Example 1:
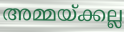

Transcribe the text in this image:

അമ്മയ്ക്കല്ല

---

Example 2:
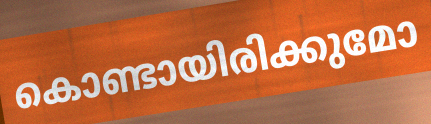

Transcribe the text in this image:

കൊണ്ടായിരിക്കുമോ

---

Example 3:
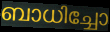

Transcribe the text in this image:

ബാധിച്ചോ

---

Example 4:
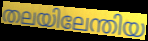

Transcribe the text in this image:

തലയിലേന്തിയ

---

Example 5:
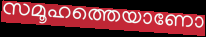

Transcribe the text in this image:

സമൂഹത്തെയാണോ